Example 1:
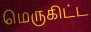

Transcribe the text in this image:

மெருகிட்ட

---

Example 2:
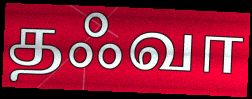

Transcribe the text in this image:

தஃவா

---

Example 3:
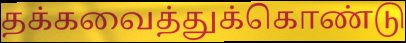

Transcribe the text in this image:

தக்கவைத்துக்கொண்டு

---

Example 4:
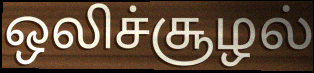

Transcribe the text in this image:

ஒலிச்சூழல்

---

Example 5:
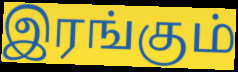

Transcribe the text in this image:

இரங்கும்